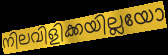
നിലവിളിക്കയില്ലയോ